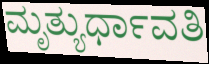
ಮೃತ್ಯುರ್ಧಾವತಿ